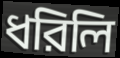
ধরিলি